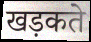
खड़कते